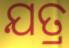
ଯତ୍ର